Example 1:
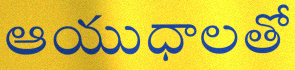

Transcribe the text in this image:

ఆయుధాలతో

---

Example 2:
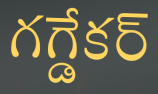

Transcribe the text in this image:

గగ్డేకర్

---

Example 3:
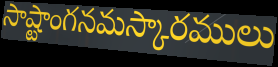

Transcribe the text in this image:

సాష్టాంగనమస్కారములు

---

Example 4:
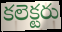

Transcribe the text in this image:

కలెక్టరు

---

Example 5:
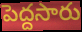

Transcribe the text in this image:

పెద్దసారు